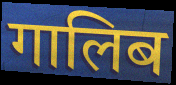
गालिब